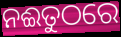
ନଈତୁଠରେ